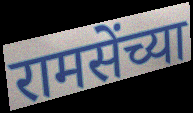
रामसेंच्या